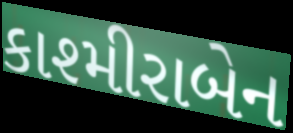
કાશ્મીરાબેન